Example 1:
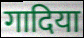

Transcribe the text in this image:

गादिया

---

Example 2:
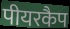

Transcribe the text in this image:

पीयरकैप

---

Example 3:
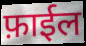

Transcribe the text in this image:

फ़ाईल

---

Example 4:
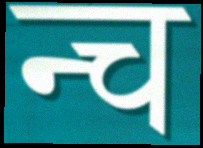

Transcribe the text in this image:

न्च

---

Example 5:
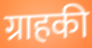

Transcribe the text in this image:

ग्राहकी